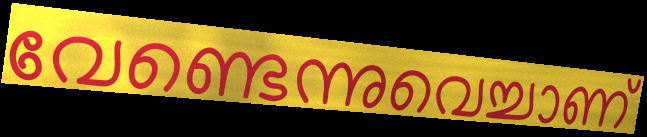
വേണ്ടെന്നുവെച്ചാണ്